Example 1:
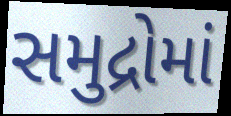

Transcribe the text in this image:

સમુદ્રોમાં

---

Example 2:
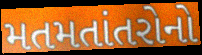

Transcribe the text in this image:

મતમતાંતરોનો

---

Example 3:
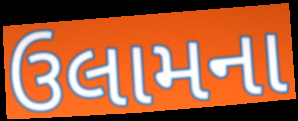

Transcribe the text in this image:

ઉલામના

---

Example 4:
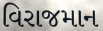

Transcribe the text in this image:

વિરાજમાન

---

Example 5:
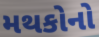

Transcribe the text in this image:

મથકોનો